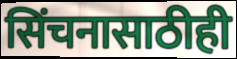
सिंचनासाठीही